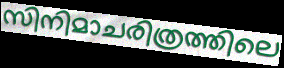
സിനിമാചരിത്രത്തിലെ